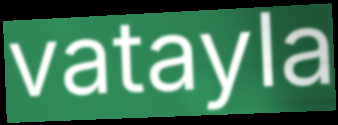
vatayla